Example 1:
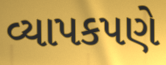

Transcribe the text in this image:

વ્યાપકપણે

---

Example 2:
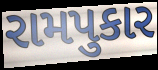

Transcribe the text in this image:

રામપુકાર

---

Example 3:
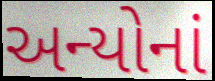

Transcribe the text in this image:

અન્યોનાં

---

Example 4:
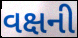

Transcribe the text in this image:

વક્ષની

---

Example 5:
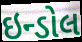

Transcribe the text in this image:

ઇન્ડોલ